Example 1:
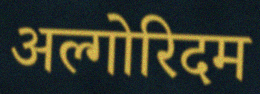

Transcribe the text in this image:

अल्गोरिदम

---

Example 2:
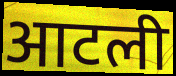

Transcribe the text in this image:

आटली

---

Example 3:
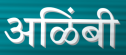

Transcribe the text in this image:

अळिंबी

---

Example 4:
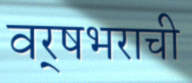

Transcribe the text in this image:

वर्षभराची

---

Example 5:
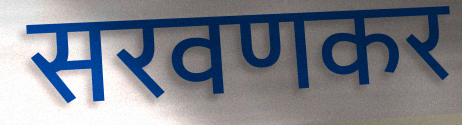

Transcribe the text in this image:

सरवणकर